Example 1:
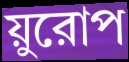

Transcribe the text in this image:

য়ুরোপ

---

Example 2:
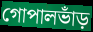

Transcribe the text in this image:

গোপালভাঁড়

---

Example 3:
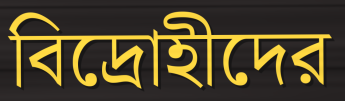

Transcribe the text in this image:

বিদ্রোহীদের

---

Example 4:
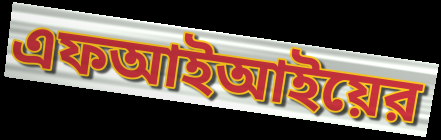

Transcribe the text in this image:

এফআইআইয়ের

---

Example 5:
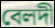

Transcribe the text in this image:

বেলদী